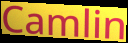
Camlin